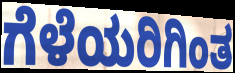
ಗೆಳೆಯರಿಗಿಂತ